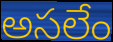
అసలేం